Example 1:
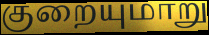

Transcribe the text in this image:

குறையுமாறு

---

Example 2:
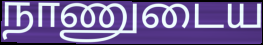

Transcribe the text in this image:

நாணுடைய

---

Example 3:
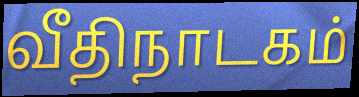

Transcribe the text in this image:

வீதிநாடகம்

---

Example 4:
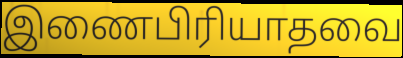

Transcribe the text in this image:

இணைபிரியாதவை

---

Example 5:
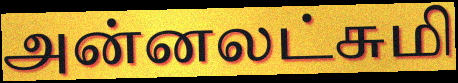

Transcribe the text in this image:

அன்னலட்சுமி